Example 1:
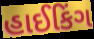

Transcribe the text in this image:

હાઈકિંગ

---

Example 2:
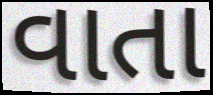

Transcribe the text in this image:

વાતા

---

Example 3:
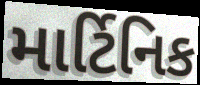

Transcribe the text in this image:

માર્ટિનિક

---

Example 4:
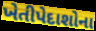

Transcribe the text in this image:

ખેતીપેદાશોના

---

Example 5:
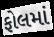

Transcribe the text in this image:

ફોલમાં